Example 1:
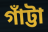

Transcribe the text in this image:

গাঁট্টা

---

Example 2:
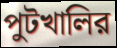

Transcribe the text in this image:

পুটখালির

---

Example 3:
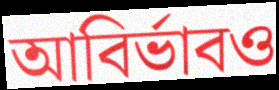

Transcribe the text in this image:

আবির্ভাবও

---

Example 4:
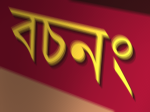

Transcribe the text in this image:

বচনং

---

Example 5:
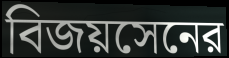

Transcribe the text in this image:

বিজয়সেনের